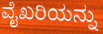
ವೈಖರಿಯನ್ನು